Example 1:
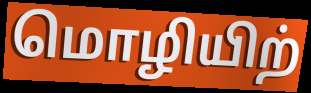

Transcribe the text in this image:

மொழியிற்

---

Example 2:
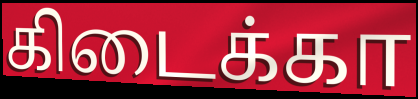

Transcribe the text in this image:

கிடைக்கா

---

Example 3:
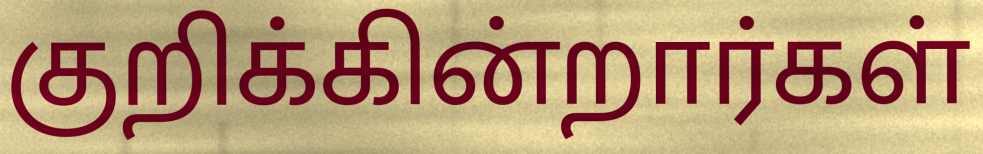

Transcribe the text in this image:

குறிக்கின்றார்கள்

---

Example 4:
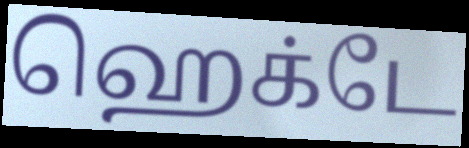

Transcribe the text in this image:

ஹெக்டே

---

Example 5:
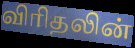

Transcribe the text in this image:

விரிதலின்